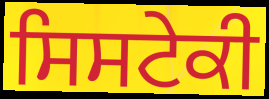
ਸਿਸਟੇਕੀ